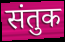
संतुक